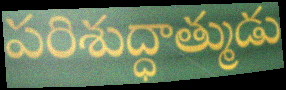
పరిశుద్ధాత్ముడు